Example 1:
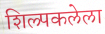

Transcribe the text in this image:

शिल्पकलेला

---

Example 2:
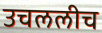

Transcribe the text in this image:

उचललीच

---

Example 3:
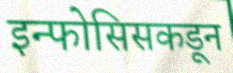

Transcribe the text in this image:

इन्फोसिसकडून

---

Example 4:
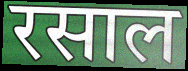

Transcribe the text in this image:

रसाल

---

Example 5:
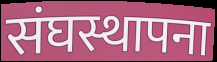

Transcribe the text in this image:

संघस्थापना